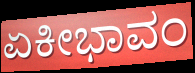
ಏಕೀಭಾವಂ